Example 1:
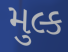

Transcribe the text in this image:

મુલ્ક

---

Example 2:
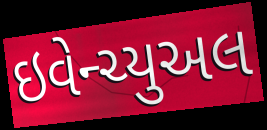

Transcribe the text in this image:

ઇવેન્ચ્યુઅલ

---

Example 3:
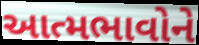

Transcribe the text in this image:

આત્મભાવોને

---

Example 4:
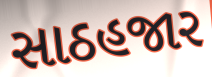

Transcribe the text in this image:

સાઠહજાર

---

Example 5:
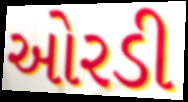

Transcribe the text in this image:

ઓરડી